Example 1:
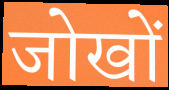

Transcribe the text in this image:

जोखों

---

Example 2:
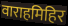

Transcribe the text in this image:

वाराहमिहिर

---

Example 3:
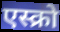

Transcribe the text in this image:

एस्क्रो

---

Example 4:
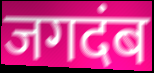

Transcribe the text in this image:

जगदंब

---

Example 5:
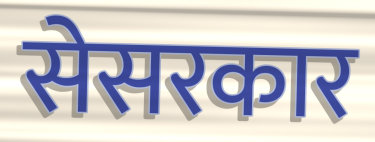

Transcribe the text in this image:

सेसरकार